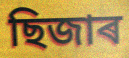
ছিজাৰ